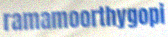
ramamoorthygopi